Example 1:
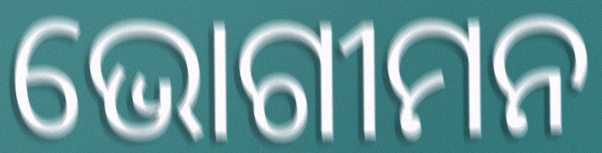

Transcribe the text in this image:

ଭୋଗୀମନ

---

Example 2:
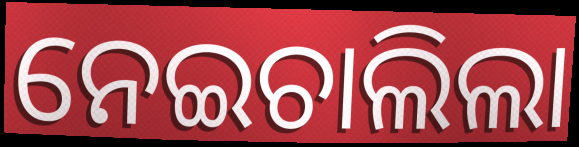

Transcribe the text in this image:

ନେଇଚାଲିଲା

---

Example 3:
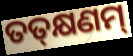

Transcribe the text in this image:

ତତ୍‌କ୍ଷଣମ୍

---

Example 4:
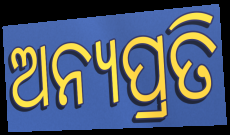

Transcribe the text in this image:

ଅନ୍ୟପ୍ରତି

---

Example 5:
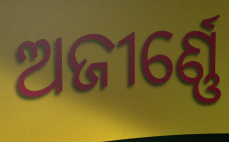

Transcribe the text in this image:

ଅଜୀର୍ଣ୍ଣେ